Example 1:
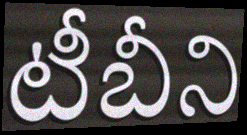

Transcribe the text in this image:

టీబీని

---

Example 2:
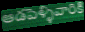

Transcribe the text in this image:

ఆడపెళ్ళివారికి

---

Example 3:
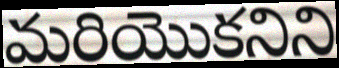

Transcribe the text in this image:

మరియొకనిని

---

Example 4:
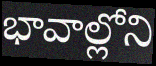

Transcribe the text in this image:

భావాల్లోని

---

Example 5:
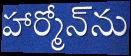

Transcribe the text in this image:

హార్మోన్‌ను